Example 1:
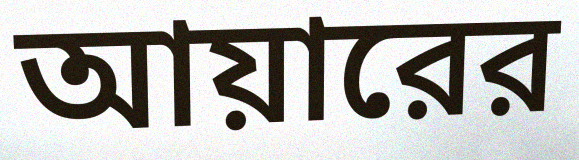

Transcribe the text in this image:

আয়ারের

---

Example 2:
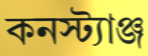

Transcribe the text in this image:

কনস্ট্যাঞ্জ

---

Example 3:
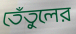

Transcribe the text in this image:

তেঁতুলের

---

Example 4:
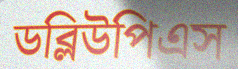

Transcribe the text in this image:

ডব্লিউপিএস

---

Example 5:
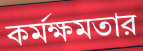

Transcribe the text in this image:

কর্মক্ষমতার